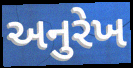
અનુરેખ